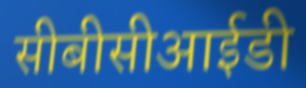
सीबीसीआईडी